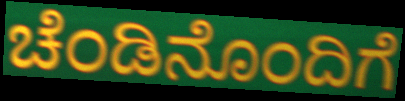
ಚೆಂಡಿನೊಂದಿಗೆ